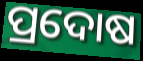
ପ୍ରଦୋଷ